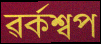
ৱৰ্কশ্বপ